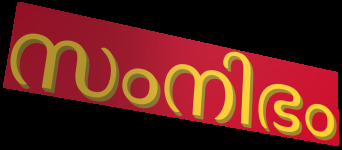
സംനിഭം